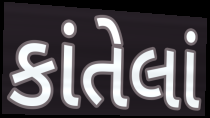
કાંતેલાં